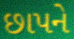
છાપને